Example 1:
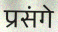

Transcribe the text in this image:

प्रसंगे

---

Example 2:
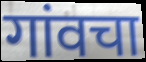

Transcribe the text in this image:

गांवचा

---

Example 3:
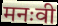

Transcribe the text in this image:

मनःवी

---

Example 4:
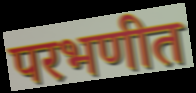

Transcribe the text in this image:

परभणीत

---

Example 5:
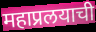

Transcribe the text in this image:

महाप्रलयाची